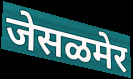
जेसळमेर